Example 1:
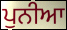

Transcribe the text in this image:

ਪੁਨੀਆ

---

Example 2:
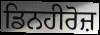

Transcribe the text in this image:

ਡਿਨਹੀਰੋਜ਼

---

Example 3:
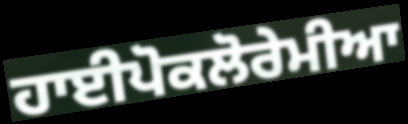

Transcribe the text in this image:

ਹਾਈਪੋਕਲੋਰੇਮੀਆ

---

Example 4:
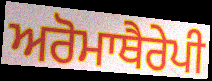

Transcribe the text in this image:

ਅਰੋਮਾਥੈਰੇਪੀ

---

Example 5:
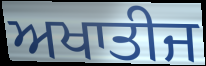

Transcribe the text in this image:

ਅਖਾਤੀਜ